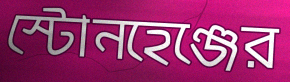
স্টোনহেঞ্জের